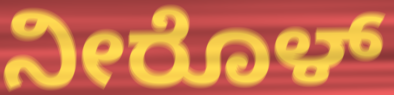
ನೀರೊಳ್